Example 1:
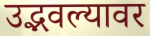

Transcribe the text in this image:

उद्भवल्यावर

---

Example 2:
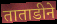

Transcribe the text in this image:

ताताडीने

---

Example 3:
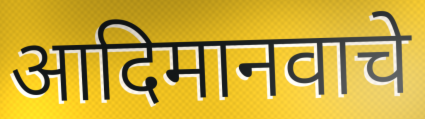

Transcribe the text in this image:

आदिमानवाचे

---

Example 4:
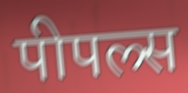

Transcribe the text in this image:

पीपल्स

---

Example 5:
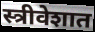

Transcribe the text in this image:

स्त्रीवेशात